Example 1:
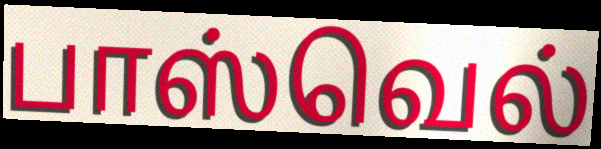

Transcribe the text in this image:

பாஸ்வெல்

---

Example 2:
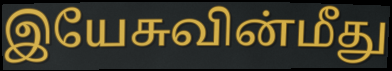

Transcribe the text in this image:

இயேசுவின்மீது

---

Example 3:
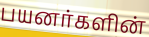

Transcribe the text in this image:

பயனர்களின்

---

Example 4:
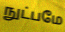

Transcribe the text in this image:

நுட்பமே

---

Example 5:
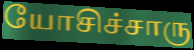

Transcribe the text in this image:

யோசிச்சாரு